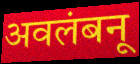
अवलंबनू